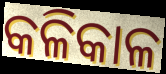
କଳିକାଳ